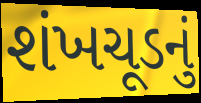
શંખચૂડનું